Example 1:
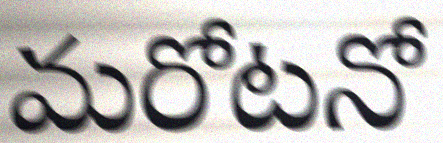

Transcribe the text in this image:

మరోటనో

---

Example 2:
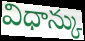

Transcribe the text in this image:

విధాన్కు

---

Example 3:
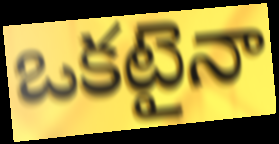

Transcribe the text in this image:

ఒకటైనా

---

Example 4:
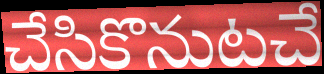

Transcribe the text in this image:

చేసికొనుటచే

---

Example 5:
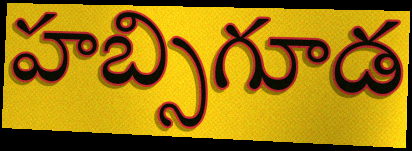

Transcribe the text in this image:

హబ్సిగూడ